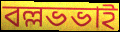
বল্লভভাই